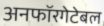
अनफॉरगेटेबल